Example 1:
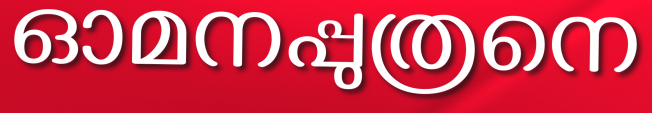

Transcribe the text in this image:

ഓമനപ്പുത്രനെ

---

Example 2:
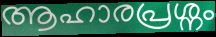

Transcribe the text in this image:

ആഹാരപ്രശ്നം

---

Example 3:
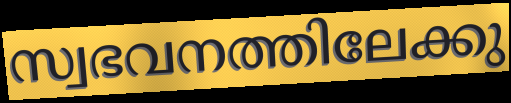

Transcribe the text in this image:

സ്വഭവനത്തിലേക്കു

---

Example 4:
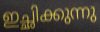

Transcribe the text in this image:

ഇച്ഛിക്കുന്നു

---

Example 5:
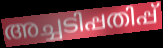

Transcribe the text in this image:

അച്ചടിപ്പതിപ്പ്